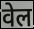
वेल